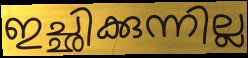
ഇച്ഛിക്കുന്നില്ല